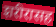
शरीरासह